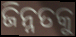
ଜିନ୍ନତକୁ